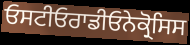
ਓਸਟੀਓਰਾਡੀਓਨੇਕ੍ਰੋਸਿਸ